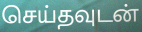
செய்தவுடன்